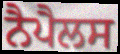
ਨੈਪੈਲਸ